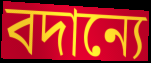
বদান্যে